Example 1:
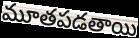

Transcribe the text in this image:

మూతపడతాయి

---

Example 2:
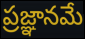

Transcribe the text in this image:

ప్రజ్ఞానమే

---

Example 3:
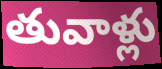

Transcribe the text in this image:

తువాళ్లు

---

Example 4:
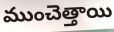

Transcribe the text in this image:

ముంచెత్తాయి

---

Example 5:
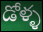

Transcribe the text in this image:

డోళ్ళ